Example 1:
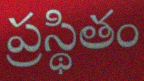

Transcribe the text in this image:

ప్రస్థితం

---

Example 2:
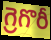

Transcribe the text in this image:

గ్రెగొరీ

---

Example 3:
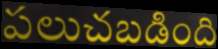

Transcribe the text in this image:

పలుచబడింది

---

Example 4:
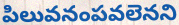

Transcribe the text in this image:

పిలువనంపవలెనని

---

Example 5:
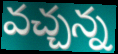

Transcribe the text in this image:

వచ్చన్న